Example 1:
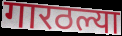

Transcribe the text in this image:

गारठल्या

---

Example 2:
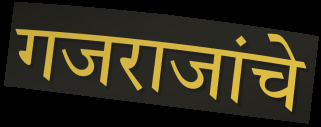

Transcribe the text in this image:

गजराजांचे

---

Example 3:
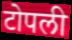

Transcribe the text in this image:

टोपली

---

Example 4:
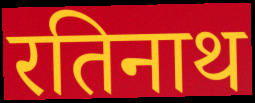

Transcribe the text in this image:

रतिनाथ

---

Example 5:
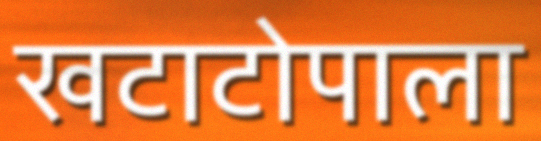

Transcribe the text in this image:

खटाटोपाला